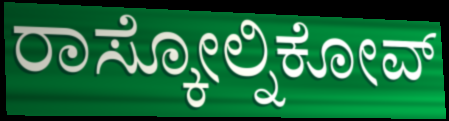
ರಾಸ್ಕೋಲ್ನಿಕೋವ್